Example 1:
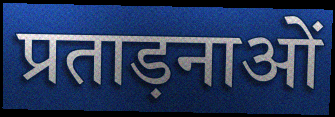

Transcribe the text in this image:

प्रताड़नाओं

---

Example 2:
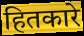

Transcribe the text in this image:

हितकारे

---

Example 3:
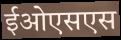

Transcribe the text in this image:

ईओएसएस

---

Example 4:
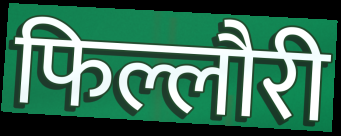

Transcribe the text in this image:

फिल्लौरी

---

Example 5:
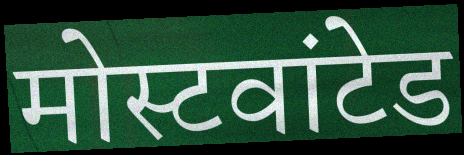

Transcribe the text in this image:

मोस्टवांटेड